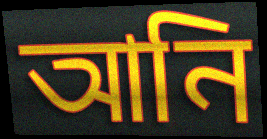
আনি